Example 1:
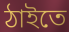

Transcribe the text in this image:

ঠাইতে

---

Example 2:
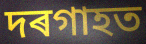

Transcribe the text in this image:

দৰগাহত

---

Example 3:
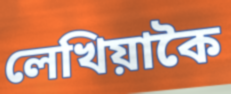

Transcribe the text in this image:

লেখিয়াকৈ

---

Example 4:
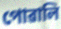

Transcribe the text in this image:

পোৱালি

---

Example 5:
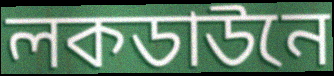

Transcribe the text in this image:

লকডাউনে